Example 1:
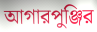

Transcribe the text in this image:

আগারপুঞ্জির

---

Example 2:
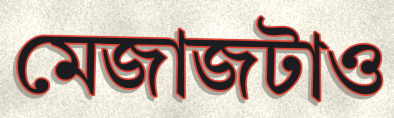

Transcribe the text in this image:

মেজাজটাও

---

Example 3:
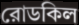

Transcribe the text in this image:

রোডকিল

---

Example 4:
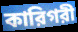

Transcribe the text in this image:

কারিগরী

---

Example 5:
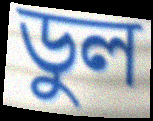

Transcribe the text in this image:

ডুল